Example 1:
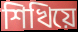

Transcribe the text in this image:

শিখিয়ে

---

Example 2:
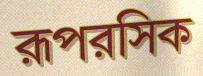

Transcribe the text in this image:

রূপরসিক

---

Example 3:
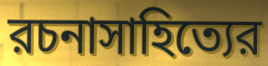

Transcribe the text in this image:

রচনাসাহিত্যের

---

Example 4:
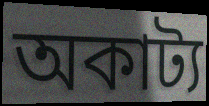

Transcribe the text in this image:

অকাট্য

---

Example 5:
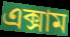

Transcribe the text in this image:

এক্সাম